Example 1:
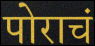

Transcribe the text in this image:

पोराचं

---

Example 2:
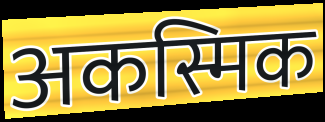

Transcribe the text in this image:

अकस्मिक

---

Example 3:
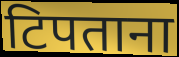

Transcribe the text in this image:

टिपताना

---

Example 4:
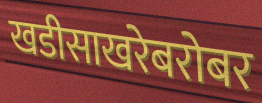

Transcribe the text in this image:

खडीसाखरेबरोबर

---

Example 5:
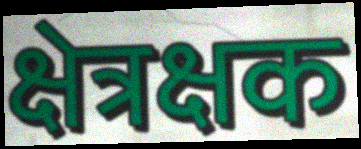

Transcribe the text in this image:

क्षेत्रक्षक